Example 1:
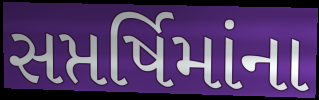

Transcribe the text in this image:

સપ્તર્ષિમાંના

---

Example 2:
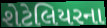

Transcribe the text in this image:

શેટેલિયરના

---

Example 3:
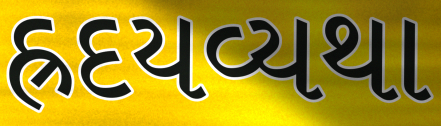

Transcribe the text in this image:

હ્રદયવ્યથા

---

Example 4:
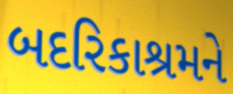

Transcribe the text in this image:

બદરિકાશ્રમને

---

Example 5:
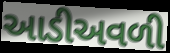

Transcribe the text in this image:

આડીઅવળી